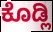
ಕೊಡ್ಲಿ